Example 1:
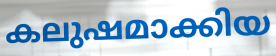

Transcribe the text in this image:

കലുഷമാക്കിയ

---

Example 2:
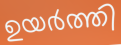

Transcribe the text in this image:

ഉയർത്തി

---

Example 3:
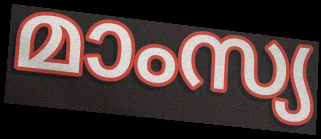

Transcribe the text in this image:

മാംസ്യ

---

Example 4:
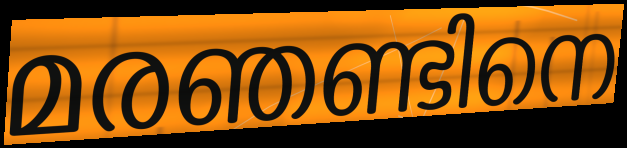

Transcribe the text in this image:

മരഞണ്ടിനെ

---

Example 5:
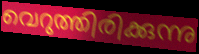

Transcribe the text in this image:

വെറുത്തിരിക്കുന്നു